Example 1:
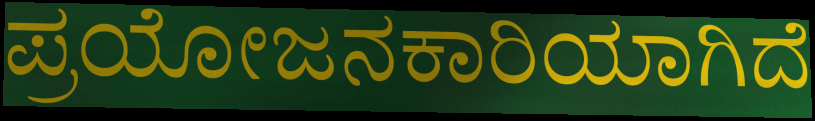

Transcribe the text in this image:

ಪ್ರಯೋಜನಕಾರಿಯಾಗಿದೆ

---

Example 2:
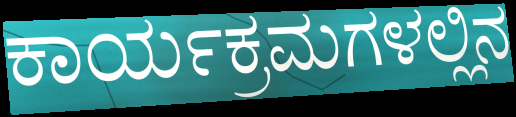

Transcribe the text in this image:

ಕಾರ್ಯಕ್ರಮಗಳಲ್ಲಿನ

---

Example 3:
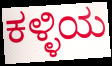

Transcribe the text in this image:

ಕಳ್ಳಿಯ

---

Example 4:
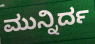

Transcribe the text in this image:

ಮುನ್ನಿರ್ದ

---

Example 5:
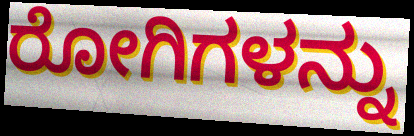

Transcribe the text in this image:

ರೋಗಿಗಳನ್ನು